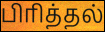
பிரித்தல்